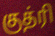
குத்ரி